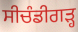
ਸੀਚੰਡੀਗੜ੍ਹ